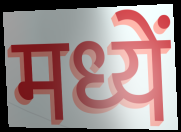
मध्यें